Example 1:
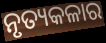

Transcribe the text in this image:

ନୃତ୍ୟକଳାର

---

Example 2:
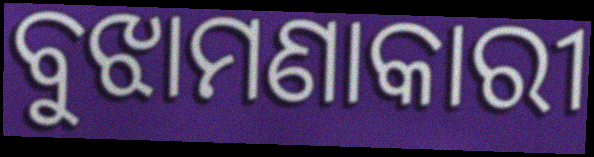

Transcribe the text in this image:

ବୁଝାମଣାକାରୀ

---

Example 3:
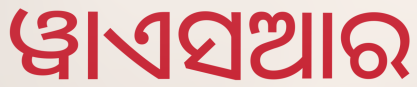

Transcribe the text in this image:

ୱାଏସଆର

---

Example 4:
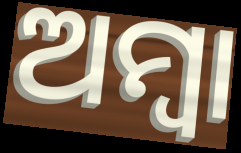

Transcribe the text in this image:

ଅମ୍ବା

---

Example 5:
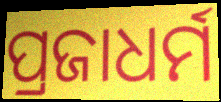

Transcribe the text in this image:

ପ୍ରଜାଧର୍ମ